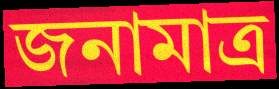
জনামাত্র